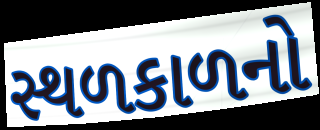
સ્થળકાળનો